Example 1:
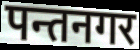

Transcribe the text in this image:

पन्तनगर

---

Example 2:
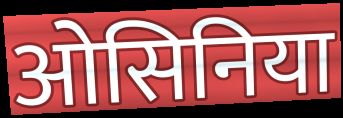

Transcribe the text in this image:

ओसिनिया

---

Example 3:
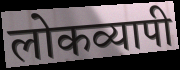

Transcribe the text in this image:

लोकव्यापी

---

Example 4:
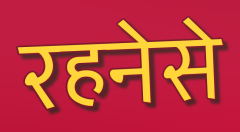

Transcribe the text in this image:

रहनेसे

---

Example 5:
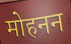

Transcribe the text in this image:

मोहनन